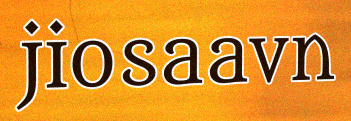
jiosaavn